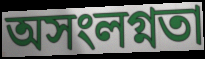
অসংলগ্নতা